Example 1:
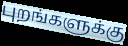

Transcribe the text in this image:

புறங்களுக்கு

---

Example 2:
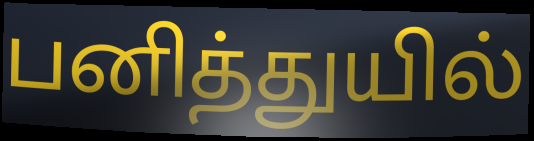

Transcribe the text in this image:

பனித்துயில்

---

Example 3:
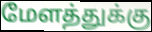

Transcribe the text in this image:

மேளத்துக்கு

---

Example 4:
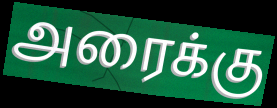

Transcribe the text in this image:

அரைக்கு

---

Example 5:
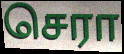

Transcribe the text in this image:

செரா